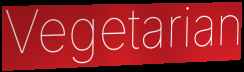
Vegetarian